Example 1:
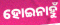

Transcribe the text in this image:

ହୋଇନାହୁଁ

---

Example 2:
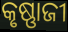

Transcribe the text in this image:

କୃଷ୍ଣାଜୀ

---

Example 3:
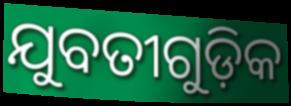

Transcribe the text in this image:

ଯୁବତୀଗୁଡ଼ିକ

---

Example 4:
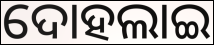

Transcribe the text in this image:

ଦୋହଲାଇ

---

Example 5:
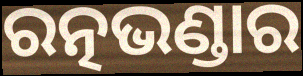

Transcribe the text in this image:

ରତ୍ନଭଣ୍ଡାର